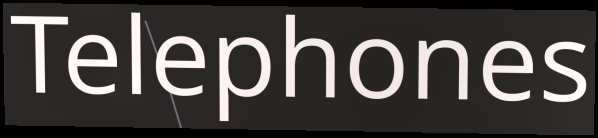
Telephones